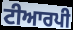
ਟੀਆਰਪੀ